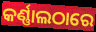
କର୍ଣ୍ଣାଲଠାରେ